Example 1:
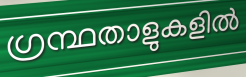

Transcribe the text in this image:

ഗ്രന്ഥതാളുകളിൽ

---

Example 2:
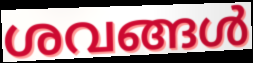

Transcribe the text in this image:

ശവങ്ങൾ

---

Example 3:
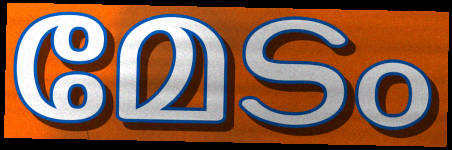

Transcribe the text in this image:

മേടം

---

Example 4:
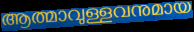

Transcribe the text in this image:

ആത്മാവുള്ളവനുമായ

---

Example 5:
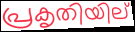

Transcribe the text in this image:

പ്രകൃതിയില്